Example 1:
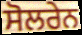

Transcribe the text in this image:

ਸੋਲਰੇਨ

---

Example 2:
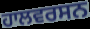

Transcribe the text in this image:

ਹਾਲਵਰਸਨ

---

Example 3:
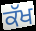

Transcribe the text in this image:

ਕੱਖ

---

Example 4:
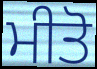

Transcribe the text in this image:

ਮੀਤੋ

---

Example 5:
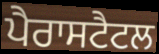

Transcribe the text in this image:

ਪੈਰਾਸਟੈਟਲ